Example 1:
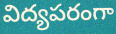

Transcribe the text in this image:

విద్యపరంగా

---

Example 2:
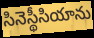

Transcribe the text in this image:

సినెస్థీసియాను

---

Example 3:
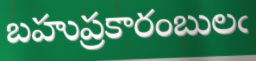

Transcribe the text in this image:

బహుప్రకారంబులఁ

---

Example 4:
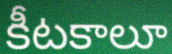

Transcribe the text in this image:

కీటకాలూ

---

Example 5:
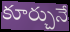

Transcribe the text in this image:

కూర్చునే